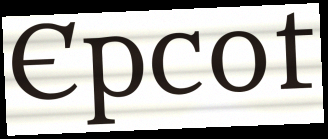
Epcot